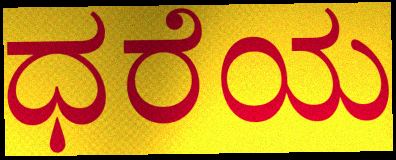
ಧರೆಯ